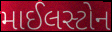
માઈલસ્ટોન